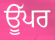
ਊੱਪਰ